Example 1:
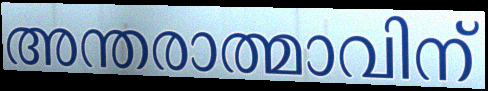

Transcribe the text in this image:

അന്തരാത്മാവിന്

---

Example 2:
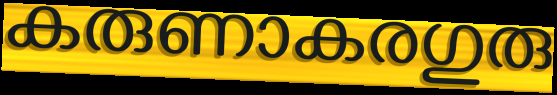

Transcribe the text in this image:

കരുണാകരഗുരു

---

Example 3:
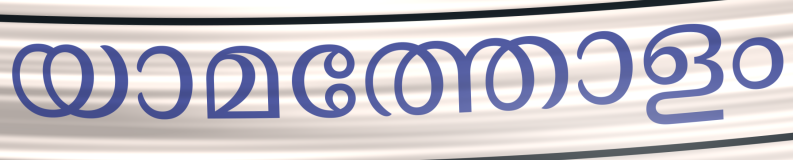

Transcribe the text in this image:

യാമത്തോളം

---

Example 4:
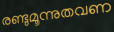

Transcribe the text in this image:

രണ്ടുമൂന്നുതവണ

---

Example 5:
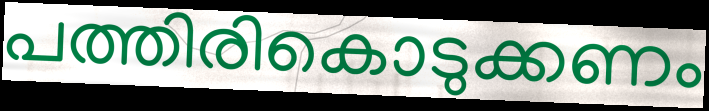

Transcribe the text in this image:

പത്തിരികൊടുക്കണം